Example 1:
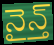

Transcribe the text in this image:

నైన్త్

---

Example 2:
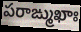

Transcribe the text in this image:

పరాఙ్ముఖాః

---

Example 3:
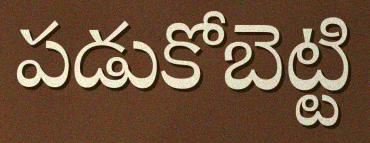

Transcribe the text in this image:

పడుకోబెట్టి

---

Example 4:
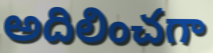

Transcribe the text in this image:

అదిలించగా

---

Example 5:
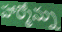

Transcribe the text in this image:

హార్మోన్ను